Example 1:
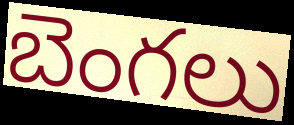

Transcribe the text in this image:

బెంగలు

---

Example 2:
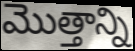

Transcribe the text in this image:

మొత్తాన్ని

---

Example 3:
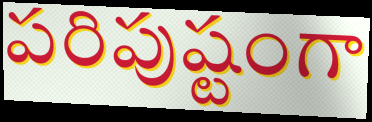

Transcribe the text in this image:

పరిపుష్టంగా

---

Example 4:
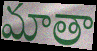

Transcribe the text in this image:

మాతా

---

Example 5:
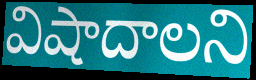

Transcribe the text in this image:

విషాదాలని